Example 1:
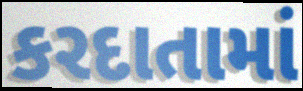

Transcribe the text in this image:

કરદાતામાં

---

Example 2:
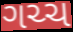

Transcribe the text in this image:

ગચ્ચ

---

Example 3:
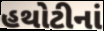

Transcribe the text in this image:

હથોટીનાં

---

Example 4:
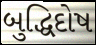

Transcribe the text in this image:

બુદ્ધિદોષ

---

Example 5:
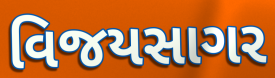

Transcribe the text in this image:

વિજયસાગર